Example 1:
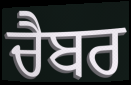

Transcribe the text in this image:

ਚੈਬਰ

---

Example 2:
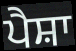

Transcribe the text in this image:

ਪੈਸ਼ਾ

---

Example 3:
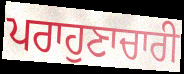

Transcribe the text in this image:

ਪਰਾਹੁਣਾਚਾਰੀ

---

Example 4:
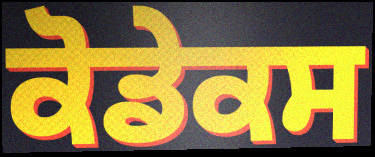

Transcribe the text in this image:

ਕੋਡੇਕਸ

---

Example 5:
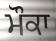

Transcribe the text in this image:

ਮੌਕਾ